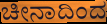
ಚೀನಾದಿಂದ